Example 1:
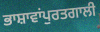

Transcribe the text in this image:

ਭਾਸ਼ਾਵਾਂਪੁਰਤਗਾਲੀ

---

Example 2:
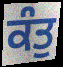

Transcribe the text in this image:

ਕੰਤੁ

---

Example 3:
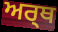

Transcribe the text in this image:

ਅਰ੍ਥ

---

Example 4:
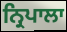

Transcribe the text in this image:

ਨ੍ਰਿਪਾਲਾ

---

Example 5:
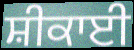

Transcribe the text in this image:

ਸ਼ੀਕਾਈ